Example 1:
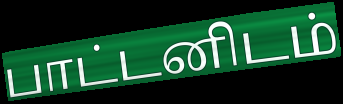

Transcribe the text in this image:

பாட்டனிடம்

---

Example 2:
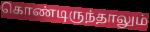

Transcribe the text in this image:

கொண்டிருந்தாலும்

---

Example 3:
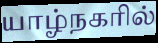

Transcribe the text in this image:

யாழ்நகரில்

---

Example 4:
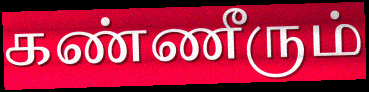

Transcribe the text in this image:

கண்ணீரும்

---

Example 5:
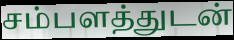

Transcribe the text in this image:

சம்பளத்துடன்